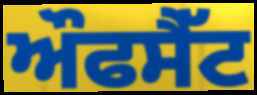
ਔਫਸੈੱਟ